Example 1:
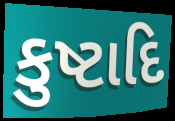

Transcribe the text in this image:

કુષ્ટાદિ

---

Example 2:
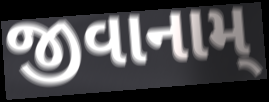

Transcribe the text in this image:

જીવાનામ્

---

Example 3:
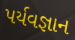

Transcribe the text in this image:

પર્યવજ્ઞાન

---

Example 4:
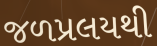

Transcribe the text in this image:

જળપ્રલયથી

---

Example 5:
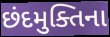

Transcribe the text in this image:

છંદમુક્તિના